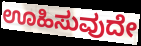
ಊಹಿಸುವುದೇ